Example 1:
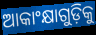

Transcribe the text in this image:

ଆକାଂକ୍ଷାଗୁଡ଼ିକୁ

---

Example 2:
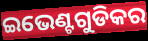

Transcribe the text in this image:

ଇଭେଣ୍ଟଗୁଡିକର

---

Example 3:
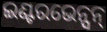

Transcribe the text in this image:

ଇଣ୍ଟରଭେନ୍ସନ୍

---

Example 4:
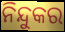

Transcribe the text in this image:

ନିନ୍ଦୁକର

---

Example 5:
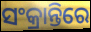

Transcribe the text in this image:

ସଂକ୍ରାନ୍ତିରେ